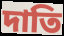
দাতি